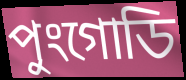
পুংগোডি